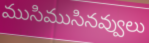
ముసిముసినవ్వులు